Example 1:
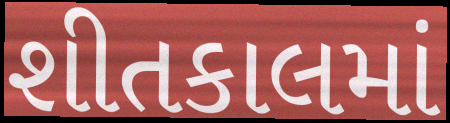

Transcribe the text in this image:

શીતકાલમાં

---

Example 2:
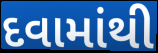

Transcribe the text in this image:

દવામાંથી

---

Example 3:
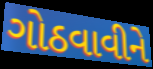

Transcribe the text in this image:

ગોઠવાવીને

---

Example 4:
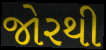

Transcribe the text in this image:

જોરથી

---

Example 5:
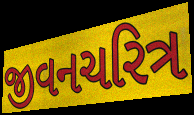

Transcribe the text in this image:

જીવનચરિત્ર